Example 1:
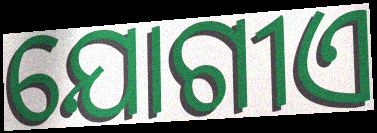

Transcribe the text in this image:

ଯୋଗୀଏ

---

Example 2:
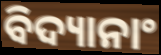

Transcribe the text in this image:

ବିଦ୍ୟାନାଂ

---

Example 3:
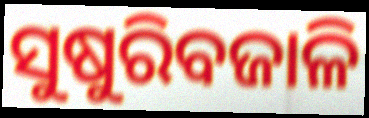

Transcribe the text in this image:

ସୁଷୁରିବଜାଳି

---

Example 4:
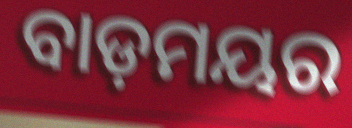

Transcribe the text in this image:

ବାଡ଼ମୟର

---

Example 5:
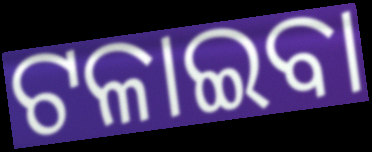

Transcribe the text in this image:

ଟଳାଇବା